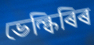
ভেল্কিৰিৰ